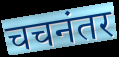
चचनंतर